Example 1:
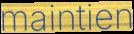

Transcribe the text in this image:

maintien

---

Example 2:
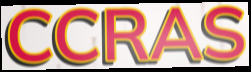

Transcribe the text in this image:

CCRAS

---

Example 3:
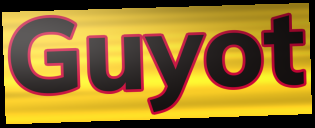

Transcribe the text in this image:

Guyot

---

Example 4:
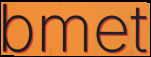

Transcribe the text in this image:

bmet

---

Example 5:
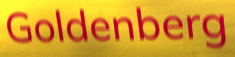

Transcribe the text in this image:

Goldenberg